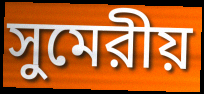
সুমেরীয়